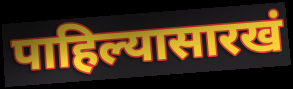
पाहिल्यासारखं